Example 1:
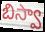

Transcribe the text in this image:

బిస్వా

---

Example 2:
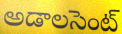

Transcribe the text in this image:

అడాలసెంట్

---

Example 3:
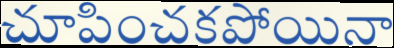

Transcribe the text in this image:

చూపించకపోయినా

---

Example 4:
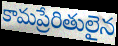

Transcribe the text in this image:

కామప్రేరితులైన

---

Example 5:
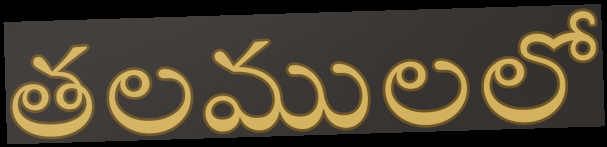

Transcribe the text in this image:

తలములలో